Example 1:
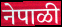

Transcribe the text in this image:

नेपाळी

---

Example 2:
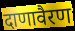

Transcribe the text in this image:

दाणावैरण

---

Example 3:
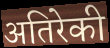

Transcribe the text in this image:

अतिरेकी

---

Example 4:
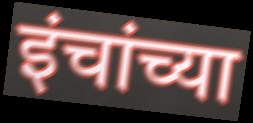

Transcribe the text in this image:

इंचांच्या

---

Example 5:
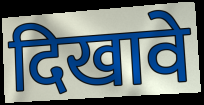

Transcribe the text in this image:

दिखावे